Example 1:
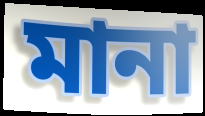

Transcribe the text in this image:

মানা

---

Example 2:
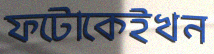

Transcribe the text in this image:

ফটোকেইখন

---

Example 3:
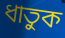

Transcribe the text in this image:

ধাতুক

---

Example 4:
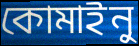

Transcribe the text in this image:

কোমাইনু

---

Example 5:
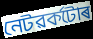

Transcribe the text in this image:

নেটৱৰ্কটোৰ